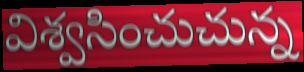
విశ్వసించుచున్న